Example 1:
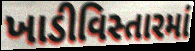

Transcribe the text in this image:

ખાડીવિસ્તારમાં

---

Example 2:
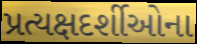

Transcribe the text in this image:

પ્રત્યક્ષદર્શીઓના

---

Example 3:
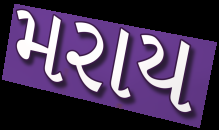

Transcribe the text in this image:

મરાય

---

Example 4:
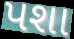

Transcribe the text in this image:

પશા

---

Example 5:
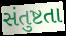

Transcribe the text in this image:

સંતુષ્ટતા